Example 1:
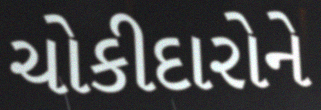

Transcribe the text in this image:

ચોકીદારોને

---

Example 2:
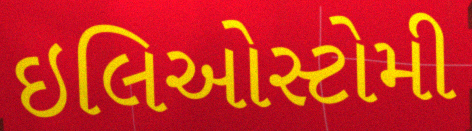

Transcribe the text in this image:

ઇલિઓસ્ટોમી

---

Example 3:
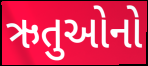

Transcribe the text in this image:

ઋતુઓનો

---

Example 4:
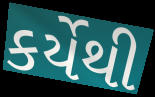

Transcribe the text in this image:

કર્યેથી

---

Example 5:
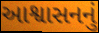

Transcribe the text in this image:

આશ્વાસનનું